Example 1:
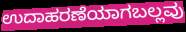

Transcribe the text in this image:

ಉದಾಹರಣೆಯಾಗಬಲ್ಲವು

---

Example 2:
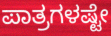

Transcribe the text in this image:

ಪಾತ್ರಗಳಷ್ಟೇ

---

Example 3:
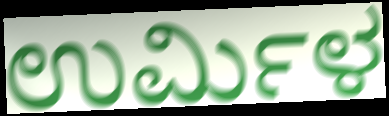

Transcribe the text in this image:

ಉರ್ಮಿಳ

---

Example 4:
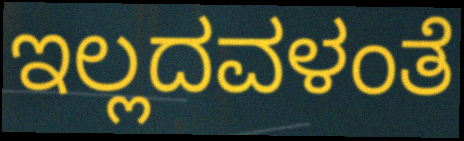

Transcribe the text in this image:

ಇಲ್ಲದವಳಂತೆ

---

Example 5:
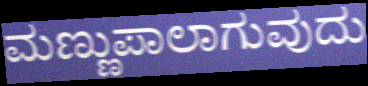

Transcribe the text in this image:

ಮಣ್ಣುಪಾಲಾಗುವುದು